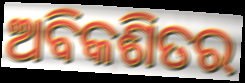
ଅବିକଶିତର